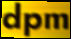
dpm